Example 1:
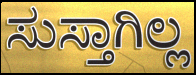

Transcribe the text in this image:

ಸುಸ್ತಾಗಿಲ್ಲ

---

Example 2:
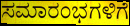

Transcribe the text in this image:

ಸಮಾರಂಭಗಳಿಗೆ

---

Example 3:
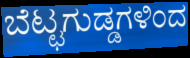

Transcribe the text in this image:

ಬೆಟ್ಟಗುಡ್ಡಗಳಿಂದ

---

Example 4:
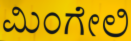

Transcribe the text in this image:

ಮಿಂಗೇಲಿ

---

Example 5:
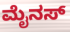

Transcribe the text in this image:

ಮೈನಸ್